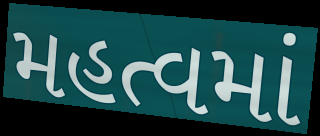
મહત્વમાં